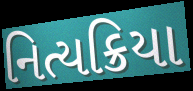
નિત્યક્રિયા